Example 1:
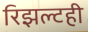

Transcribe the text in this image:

रिझल्टही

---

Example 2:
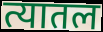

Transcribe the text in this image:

त्यातल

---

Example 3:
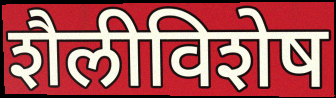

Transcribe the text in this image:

शैलीविशेष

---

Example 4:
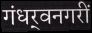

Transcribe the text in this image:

गंधर्वनगरीं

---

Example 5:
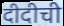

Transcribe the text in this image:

दीदीची